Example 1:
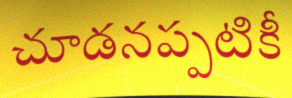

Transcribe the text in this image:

చూడనప్పటికీ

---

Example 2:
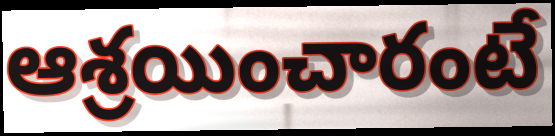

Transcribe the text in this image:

ఆశ్రయించారంటే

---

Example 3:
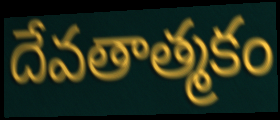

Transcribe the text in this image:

దేవతాత్మకం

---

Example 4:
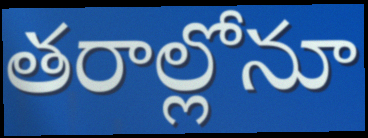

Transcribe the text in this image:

తరాల్లోనూ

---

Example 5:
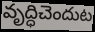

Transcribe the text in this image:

వృద్ధిచెందుట